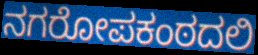
ನಗರೋಪಕಂಠದಲಿ